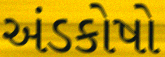
અંડકોષો